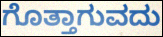
ಗೊತ್ತಾಗುವದು